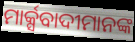
ମାର୍କ୍ସବାଦୀମାନଙ୍କ